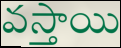
వస్తాయి